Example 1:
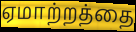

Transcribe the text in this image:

ஏமாற்றத்தை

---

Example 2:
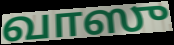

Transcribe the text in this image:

வாஸு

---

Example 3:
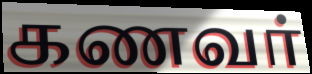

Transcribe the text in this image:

கணவர்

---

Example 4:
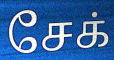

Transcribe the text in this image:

சேக்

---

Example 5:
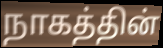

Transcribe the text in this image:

நாகத்தின்